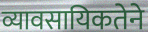
व्यावसायिकतेने